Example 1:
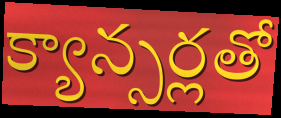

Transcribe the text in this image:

క్యాన్సర్లతో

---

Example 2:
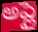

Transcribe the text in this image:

అప్లై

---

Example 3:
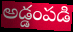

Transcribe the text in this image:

అడ్డంపడి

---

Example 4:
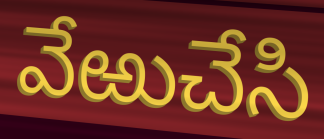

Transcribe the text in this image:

వేఱుచేసి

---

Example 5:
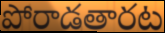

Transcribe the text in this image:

పోరాడతారట